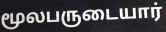
மூலபருடையார்